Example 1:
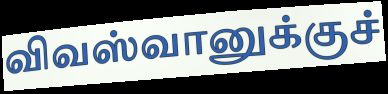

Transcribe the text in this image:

விவஸ்வானுக்குச்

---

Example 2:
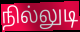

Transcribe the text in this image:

நில்லுடி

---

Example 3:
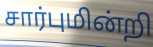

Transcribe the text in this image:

சார்புமின்றி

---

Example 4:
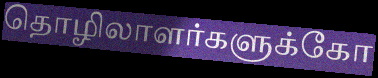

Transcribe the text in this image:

தொழிலாளர்களுக்கோ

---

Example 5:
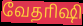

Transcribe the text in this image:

வேதரிஷி